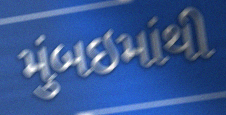
મુંબઇમાંથી